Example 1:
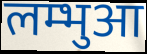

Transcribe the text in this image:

लम्भुआ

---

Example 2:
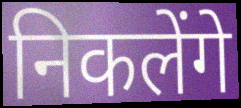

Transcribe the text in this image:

निकलेंगे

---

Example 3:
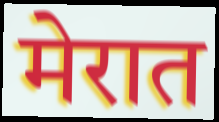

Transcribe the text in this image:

मेरात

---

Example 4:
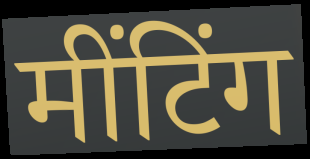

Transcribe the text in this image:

मींटिंग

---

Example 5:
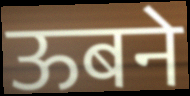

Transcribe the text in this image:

ऊबने